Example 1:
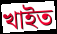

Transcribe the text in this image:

খাইত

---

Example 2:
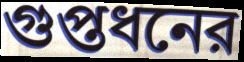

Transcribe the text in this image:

গুপ্তধনের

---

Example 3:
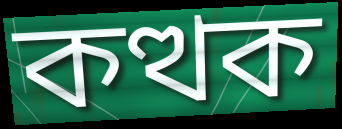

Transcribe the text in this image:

কত্থক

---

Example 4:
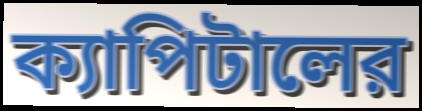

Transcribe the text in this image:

ক্যাপিটালের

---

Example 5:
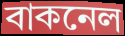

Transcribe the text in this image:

বাকনেল